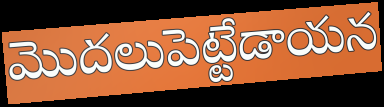
మొదలుపెట్టేడాయన